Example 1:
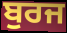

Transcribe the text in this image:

ਬੁਰਜ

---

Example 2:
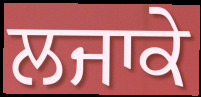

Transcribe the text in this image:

ਲਜਾਕੇ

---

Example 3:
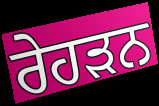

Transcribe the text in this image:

ਰੇਹੜਨ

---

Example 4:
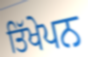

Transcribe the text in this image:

ਤਿੱਖੇਪਨ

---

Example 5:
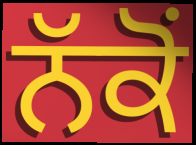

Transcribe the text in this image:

ਨੱਕੋਂ